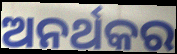
ଅନର୍ଥକର